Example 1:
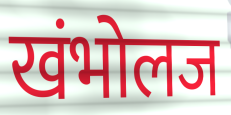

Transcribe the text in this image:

खंभोलज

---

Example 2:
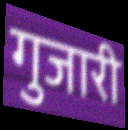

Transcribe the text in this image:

गुजारी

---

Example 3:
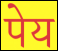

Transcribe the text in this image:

पेय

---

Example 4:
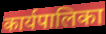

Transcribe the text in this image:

कार्यपालिका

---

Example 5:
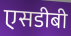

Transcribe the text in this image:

एसडीबी